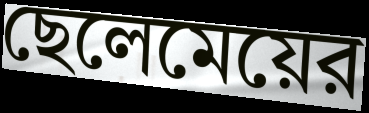
ছেলেমেয়ের